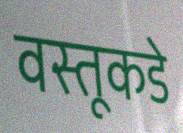
वस्तूकडे